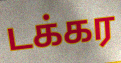
டக்கர